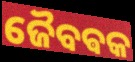
ଜୈବଵକ